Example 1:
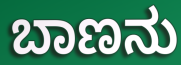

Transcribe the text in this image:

ಬಾಣನು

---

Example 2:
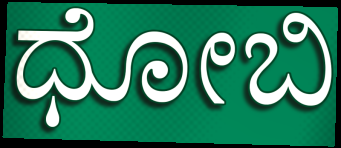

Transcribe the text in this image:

ಧೋಬಿ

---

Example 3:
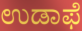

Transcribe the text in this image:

ಉಡಾಫೆ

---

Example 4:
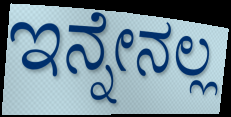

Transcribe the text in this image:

ಇನ್ನೇನಲ್ಲ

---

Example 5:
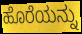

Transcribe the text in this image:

ಹೊರೆಯನ್ನು